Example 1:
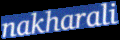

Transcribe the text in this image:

nakharali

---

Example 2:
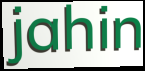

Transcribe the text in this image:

jahin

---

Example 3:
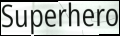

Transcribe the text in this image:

Superhero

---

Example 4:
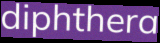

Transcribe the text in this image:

diphthera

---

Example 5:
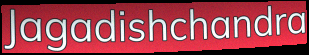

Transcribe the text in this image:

Jagadishchandra